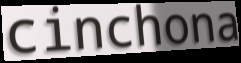
cinchona